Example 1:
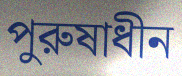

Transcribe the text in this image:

পুরুষাধীন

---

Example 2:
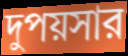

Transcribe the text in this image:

দুপয়সার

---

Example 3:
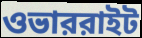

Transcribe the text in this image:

ওভাররাইট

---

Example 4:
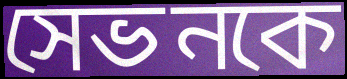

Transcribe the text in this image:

সেভনকে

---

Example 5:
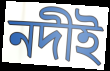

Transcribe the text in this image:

নদীই